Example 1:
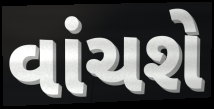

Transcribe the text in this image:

વાંચશે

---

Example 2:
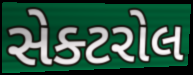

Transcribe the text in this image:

સેક્ટરોલ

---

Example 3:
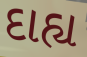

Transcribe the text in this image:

દાહ્ય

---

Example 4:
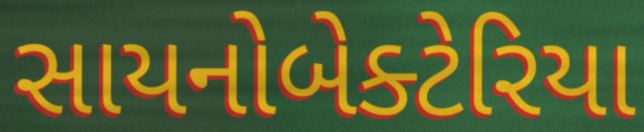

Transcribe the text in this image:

સાયનોબેક્ટેરિયા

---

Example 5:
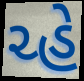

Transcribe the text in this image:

ચ્હે